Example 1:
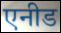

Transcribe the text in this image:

एनीड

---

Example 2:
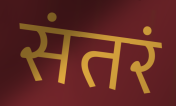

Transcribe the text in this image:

संतरं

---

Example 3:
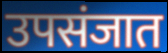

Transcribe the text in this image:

उपसंजात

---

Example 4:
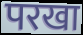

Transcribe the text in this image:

परखा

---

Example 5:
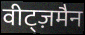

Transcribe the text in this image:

वीट्ज़मैन